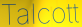
Talcott